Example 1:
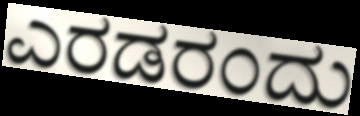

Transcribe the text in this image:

ಎರಡರಂದು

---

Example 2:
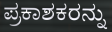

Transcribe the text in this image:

ಪ್ರಕಾಶಕರನ್ನು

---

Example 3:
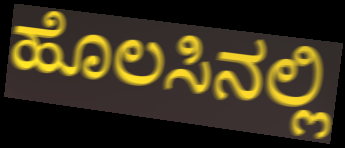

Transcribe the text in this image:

ಹೊಲಸಿನಲ್ಲಿ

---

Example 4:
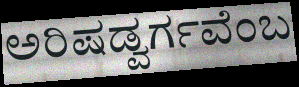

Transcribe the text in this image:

ಅರಿಷಡ್ವರ್ಗವೆಂಬ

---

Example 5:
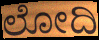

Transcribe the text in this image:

ಲೋದಿ